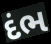
દંભ